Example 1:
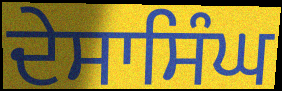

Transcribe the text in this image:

ਦੇਸਾਸਿੰਘ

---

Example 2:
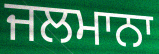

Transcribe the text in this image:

ਜਲਮਾਨਾ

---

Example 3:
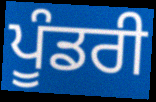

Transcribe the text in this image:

ਪੂੰਡਰੀ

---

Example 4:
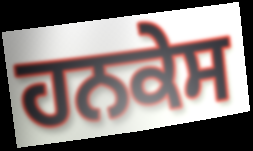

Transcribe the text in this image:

ਹਨਕੇਸ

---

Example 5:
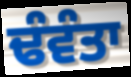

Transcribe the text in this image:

ਢੰਵੰਤਾ